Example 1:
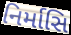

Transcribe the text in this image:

નિર્માસિ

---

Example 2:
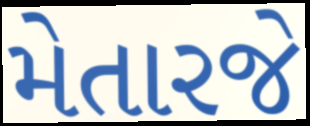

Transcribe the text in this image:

મેતારજે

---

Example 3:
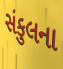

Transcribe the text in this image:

સંકુલના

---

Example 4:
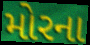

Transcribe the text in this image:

મોરના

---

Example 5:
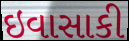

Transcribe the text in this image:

ઇવાસાકી